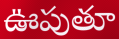
ఊపుతూ